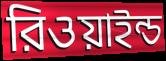
রিওয়াইন্ড